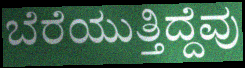
ಬೆರೆಯುತ್ತಿದ್ದೆವು